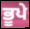
ਭੂਪੇ